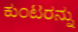
ಕುಂಟರನ್ನು